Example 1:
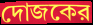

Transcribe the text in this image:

দোজকের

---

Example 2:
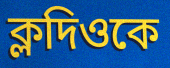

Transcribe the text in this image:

ক্লদিওকে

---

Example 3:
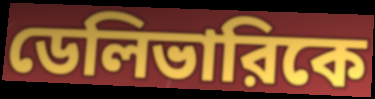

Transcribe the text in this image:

ডেলিভারিকে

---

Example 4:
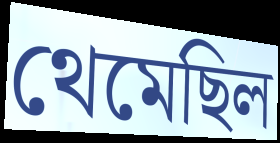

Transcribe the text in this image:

থেমেছিল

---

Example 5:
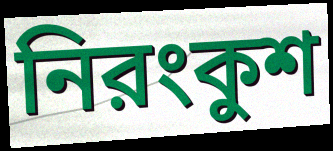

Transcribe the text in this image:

নিরংকুশ